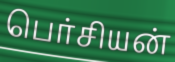
பெர்சியன்